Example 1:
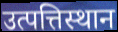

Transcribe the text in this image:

उत्पत्तिस्थान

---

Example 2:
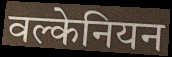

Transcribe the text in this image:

वल्केनियन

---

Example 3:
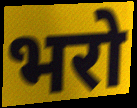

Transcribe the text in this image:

भरो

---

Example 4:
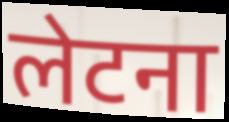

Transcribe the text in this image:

लेटना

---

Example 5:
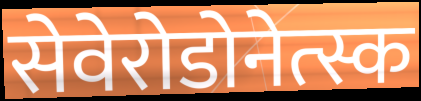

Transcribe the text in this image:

सेवेरोडोनेत्स्क